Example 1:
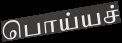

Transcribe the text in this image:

பொய்யச்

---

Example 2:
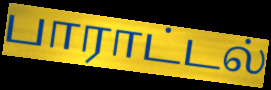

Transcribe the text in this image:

பாராட்டல்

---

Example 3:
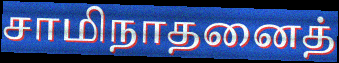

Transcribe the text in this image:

சாமிநாதனைத்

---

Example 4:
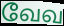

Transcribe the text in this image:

வேவ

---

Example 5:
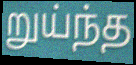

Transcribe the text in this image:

றுய்ந்த